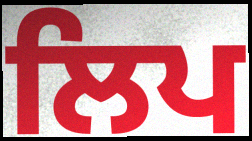
ਲਿਪ